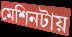
মেশিনটায়